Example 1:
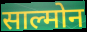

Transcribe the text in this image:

साल्मोन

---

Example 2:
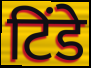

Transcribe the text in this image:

टिंडे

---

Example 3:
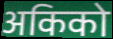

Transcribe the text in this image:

अकिको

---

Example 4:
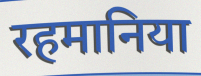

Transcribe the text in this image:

रहमानिया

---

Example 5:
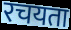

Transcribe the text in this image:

रचयता